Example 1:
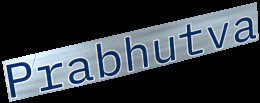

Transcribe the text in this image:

Prabhutva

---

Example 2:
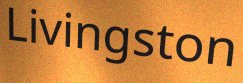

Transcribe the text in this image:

Livingston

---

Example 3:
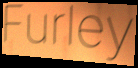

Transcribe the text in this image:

Furley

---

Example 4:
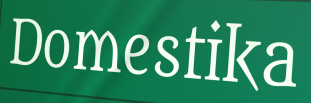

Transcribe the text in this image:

Domestika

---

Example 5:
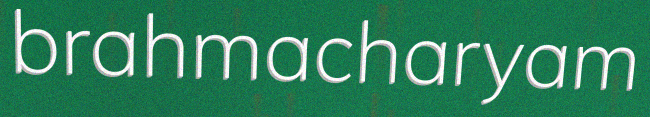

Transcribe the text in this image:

brahmacharyam